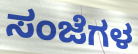
ಸಂಜೆಗಳ